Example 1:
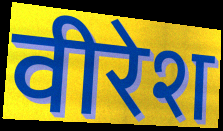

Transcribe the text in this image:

वीरेश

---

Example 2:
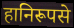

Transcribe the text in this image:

हानिरूपसे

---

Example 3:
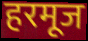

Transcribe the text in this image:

हरमूज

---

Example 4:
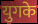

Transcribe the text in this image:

युगके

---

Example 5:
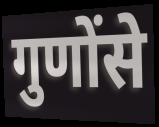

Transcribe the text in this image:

गुणोंसे